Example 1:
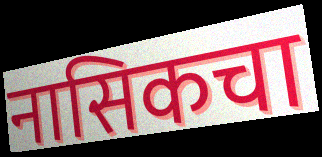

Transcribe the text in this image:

नासिकचा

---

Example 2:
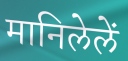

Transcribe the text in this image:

मानिलेलें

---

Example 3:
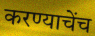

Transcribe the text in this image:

करण्याचेंच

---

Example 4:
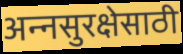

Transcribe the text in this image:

अन्नसुरक्षेसाठी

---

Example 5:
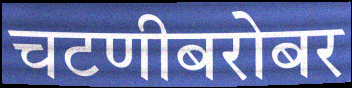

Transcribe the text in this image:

चटणीबरोबर